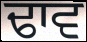
ਢਾਵ